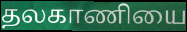
தலகாணியை